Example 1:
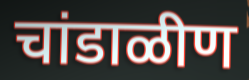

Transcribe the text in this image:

चांडाळीण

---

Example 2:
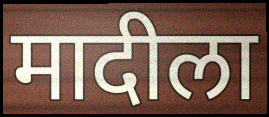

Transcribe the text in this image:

मादीला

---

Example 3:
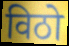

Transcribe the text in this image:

विठो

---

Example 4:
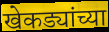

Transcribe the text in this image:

खेकड्यांच्या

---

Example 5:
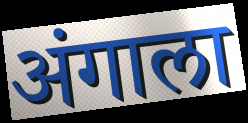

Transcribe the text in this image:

अंगाला